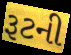
રૂટની